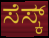
ಸೆಸ್ಕ್